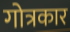
गोत्रकार